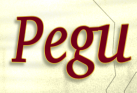
Pegu